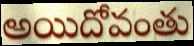
అయిదోవంతు